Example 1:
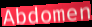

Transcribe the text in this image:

Abdomen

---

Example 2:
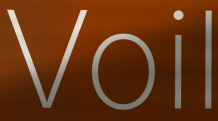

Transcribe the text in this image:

Voil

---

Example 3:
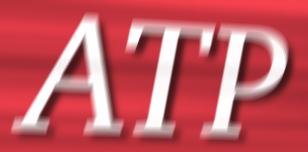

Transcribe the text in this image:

ATP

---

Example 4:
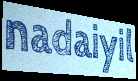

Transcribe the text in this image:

nadaiyil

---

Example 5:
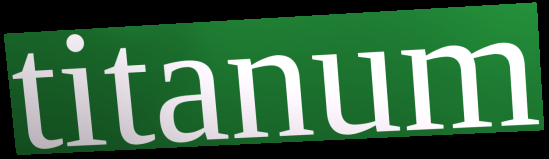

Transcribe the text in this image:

titanum